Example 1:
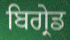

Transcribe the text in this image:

ਬਿਗ੍ਰੇਡ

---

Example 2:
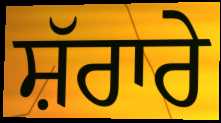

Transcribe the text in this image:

ਸ਼ੱਰਾਰੇ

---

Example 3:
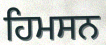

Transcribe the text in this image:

ਹਿਮਸਨ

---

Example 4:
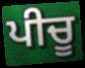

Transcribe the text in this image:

ਪੀਚੂ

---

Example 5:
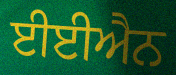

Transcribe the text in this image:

ਈਈਐਨ